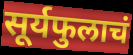
सूर्यफुलाचं